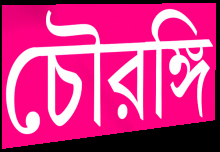
চৌরঙ্গি